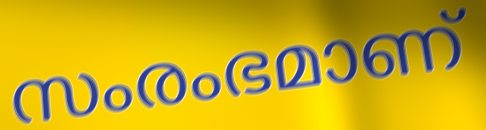
സംരംഭമാണ്